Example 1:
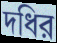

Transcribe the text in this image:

দধির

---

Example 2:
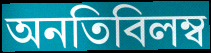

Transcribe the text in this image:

অনতিবিলম্ব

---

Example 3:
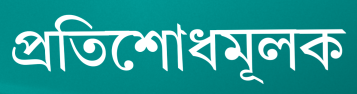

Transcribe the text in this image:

প্রতিশোধমূলক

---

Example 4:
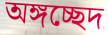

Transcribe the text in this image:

অঙ্গচ্ছেদ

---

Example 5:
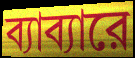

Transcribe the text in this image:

ব্যাব্যারে